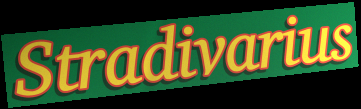
Stradivarius